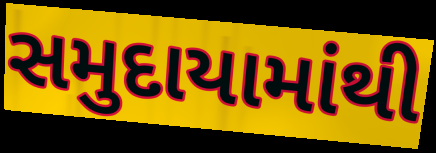
સમુદાયામાંથી